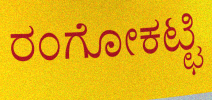
ರಂಗೋಕಟ್ಟಿ